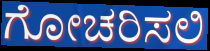
ಗೋಚರಿಸಲಿ